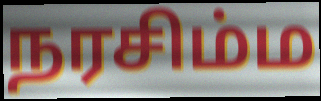
நரசிம்ம